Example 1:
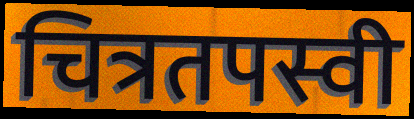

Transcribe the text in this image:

चित्रतपस्वी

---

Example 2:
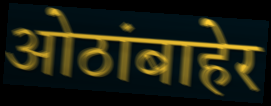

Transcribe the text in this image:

ओठांबाहेर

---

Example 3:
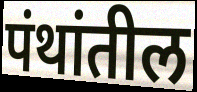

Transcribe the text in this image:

पंथांतील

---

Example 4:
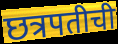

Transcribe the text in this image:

छत्रपतीची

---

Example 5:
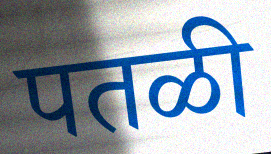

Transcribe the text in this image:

पतळी